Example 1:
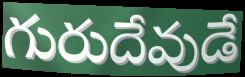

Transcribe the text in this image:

గురుదేవుడే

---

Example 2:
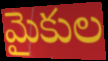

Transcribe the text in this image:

మైకుల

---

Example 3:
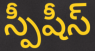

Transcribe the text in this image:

స్పీషీస్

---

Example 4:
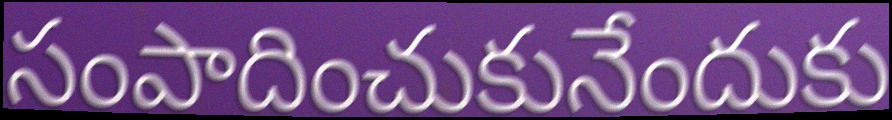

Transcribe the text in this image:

సంపాదించుకునేందుకు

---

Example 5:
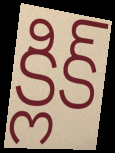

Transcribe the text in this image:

క్లిక్